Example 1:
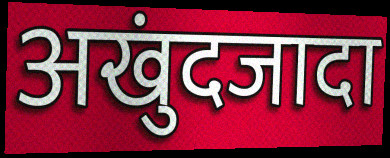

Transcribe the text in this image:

अखुंदजादा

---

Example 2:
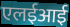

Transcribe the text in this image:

एलईआई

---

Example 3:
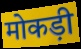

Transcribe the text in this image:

मोकड़ी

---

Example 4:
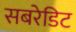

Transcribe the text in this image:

सबरेडिट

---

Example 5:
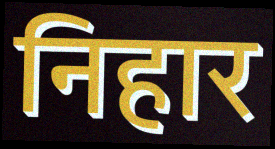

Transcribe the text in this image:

निहार